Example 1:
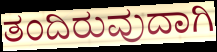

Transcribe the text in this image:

ತಂದಿರುವುದಾಗಿ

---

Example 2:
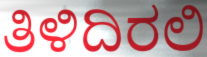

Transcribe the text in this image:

ತಿಳಿದಿರಲಿ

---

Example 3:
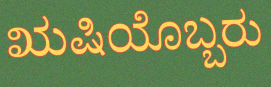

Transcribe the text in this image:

ಋಷಿಯೊಬ್ಬರು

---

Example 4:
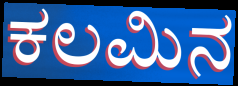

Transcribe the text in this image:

ಕಲಮಿನ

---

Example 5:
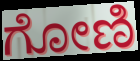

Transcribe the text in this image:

ಗೋಣಿ